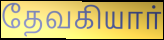
தேவகியார்